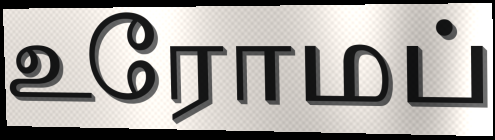
உரோமப்